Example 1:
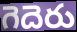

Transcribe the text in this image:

గెదెరు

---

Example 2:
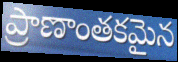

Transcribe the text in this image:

ప్రాణాంతకమైన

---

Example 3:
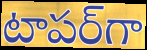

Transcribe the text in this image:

టాపర్‌గా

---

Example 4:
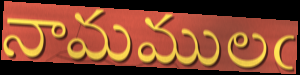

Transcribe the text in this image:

నామములఁ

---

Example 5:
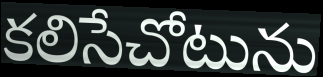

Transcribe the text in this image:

కలిసేచోటును